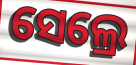
ସେଲ୍ରେ